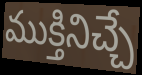
ముక్తినిచ్చే